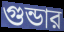
গুন্ডার